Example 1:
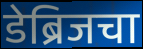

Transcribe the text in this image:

डेब्रिजचा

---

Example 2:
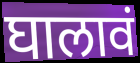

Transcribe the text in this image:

घालावं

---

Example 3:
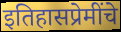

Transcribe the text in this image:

इतिहासप्रेमींचे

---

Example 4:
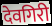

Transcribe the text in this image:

देवगिरी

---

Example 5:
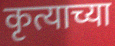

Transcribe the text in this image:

कृत्याच्या